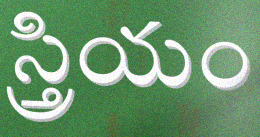
స్త్రియం